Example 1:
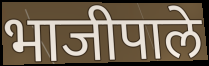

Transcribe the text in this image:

भाजीपाले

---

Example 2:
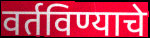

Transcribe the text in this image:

वर्तविण्याचे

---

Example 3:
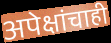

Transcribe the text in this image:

अपेक्षांचाही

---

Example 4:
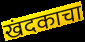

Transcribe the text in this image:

खंदकाचा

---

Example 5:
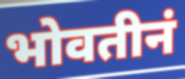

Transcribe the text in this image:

भोवतीनं